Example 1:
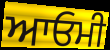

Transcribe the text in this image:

ਆਓਮੀ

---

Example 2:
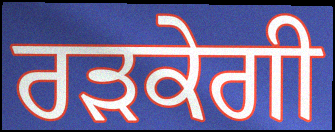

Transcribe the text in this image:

ਰੜਕੇਗੀ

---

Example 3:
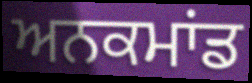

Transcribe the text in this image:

ਅਨਕਮਾਂਡ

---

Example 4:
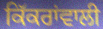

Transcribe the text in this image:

ਕਿੱਕਰਾਂਵਾਲੀ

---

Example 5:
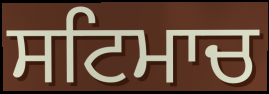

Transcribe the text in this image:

ਸਟਿਮਾਚ